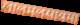
लालमलसावमा